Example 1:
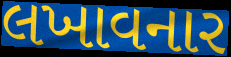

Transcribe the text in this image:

લખાવનાર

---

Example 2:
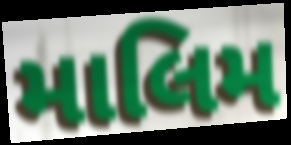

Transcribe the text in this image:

માલિમ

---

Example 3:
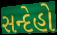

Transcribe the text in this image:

સન્દેહો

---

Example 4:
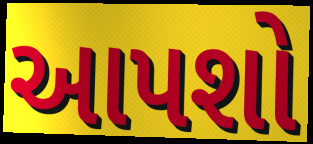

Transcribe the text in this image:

આપશો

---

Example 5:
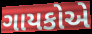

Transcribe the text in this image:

ગાયકોએ